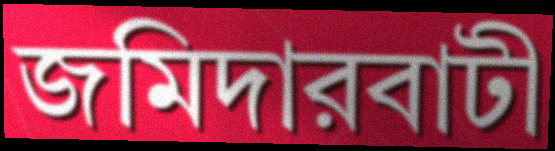
জমিদারবাটী